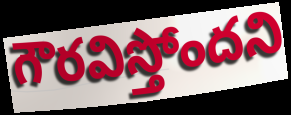
గౌరవిస్తోందని